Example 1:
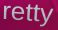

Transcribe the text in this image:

retty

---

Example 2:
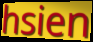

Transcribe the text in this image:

hsien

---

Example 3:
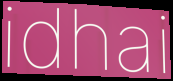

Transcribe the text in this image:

idhai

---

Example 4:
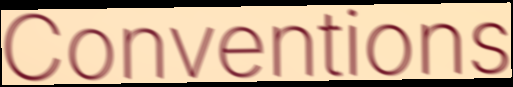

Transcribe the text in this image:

Conventions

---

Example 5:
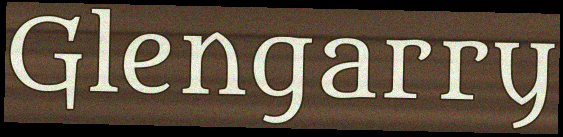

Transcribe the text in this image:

Glengarry